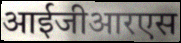
आईजीआरएस